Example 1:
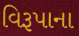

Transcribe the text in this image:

વિરૂપાના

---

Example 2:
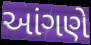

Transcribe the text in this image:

આંગણે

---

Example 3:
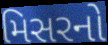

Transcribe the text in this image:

મિસરનો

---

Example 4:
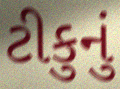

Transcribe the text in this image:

ટીકુનું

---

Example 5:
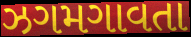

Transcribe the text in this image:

ઝગમગાવતા